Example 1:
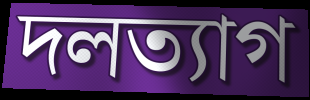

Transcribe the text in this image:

দলত্যাগ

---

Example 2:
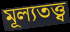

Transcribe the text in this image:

মূল্যতত্ত্ব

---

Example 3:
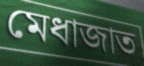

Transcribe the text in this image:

মেধাজাত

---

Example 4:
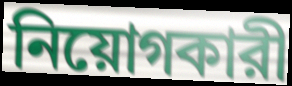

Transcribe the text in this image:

নিয়োগকারী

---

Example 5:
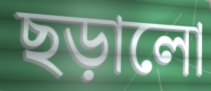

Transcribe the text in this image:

ছড়ালো